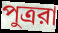
পুত্ররা